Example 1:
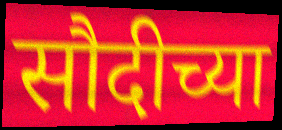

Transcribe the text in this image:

सौदीच्या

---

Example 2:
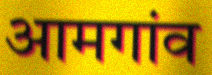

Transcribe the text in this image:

आमगांव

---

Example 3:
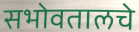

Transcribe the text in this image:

सभोवतालचे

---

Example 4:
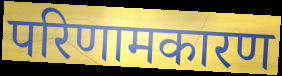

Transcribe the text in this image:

परिणामकारण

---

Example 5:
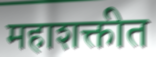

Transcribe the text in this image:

महाशक्तीत